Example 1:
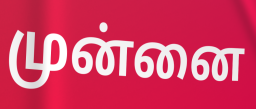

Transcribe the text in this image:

முன்னை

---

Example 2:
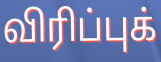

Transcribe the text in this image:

விரிப்புக்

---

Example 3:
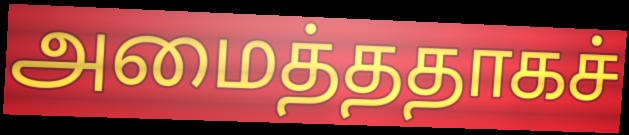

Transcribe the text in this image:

அமைத்ததாகச்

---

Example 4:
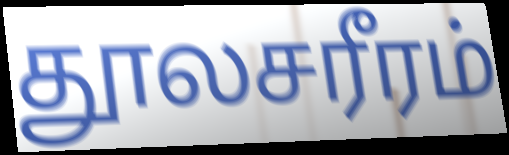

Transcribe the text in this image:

தூலசரீரம்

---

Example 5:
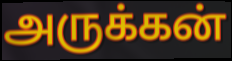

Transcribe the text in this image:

அருக்கன்